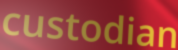
custodian